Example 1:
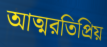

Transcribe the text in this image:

আত্মরতিপ্রিয়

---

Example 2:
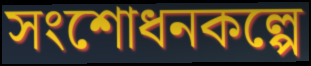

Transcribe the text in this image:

সংশোধনকল্পে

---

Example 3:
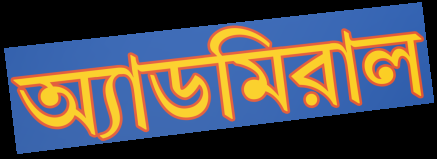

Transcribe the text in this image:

অ্যাডমিরাল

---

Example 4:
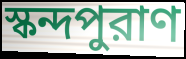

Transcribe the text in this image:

স্কন্দপুরাণ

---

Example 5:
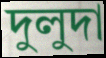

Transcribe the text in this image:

দুলুদা